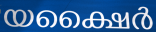
യക്ഷൈർ